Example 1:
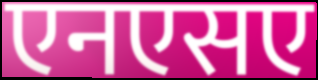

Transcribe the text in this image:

एनएसए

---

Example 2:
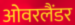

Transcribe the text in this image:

ओवरलैंडर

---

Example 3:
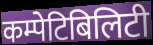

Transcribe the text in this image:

कम्पेटिबिलिटी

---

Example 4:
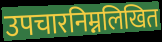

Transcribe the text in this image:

उपचारनिम्नलिखित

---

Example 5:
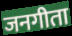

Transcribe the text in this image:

जनगीता